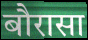
बौरासा